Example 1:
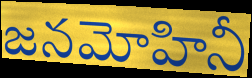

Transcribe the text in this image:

జనమోహినీ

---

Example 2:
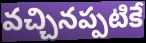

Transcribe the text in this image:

వచ్చినప్పటికే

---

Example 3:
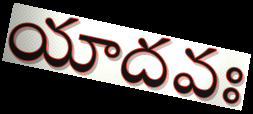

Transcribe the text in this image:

యాదవః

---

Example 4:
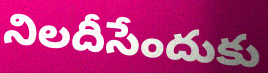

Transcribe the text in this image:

నిలదీసేందుకు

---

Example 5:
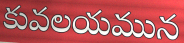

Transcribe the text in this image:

కువలయమున